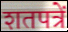
शतपत्रें